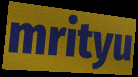
mrityu